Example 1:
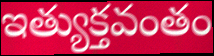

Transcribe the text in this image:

ఇత్యుక్తవంతం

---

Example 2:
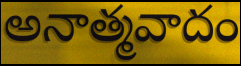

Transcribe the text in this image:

అనాత్మవాదం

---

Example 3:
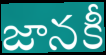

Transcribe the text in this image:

జానకీ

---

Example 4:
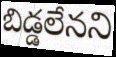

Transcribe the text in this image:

బిడ్డలేనని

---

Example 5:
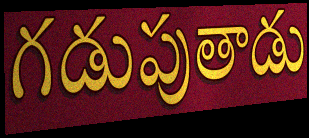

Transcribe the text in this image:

గడుపుతాడు